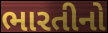
ભારતીનો